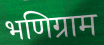
भणिग्राम